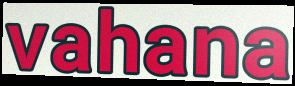
vahana